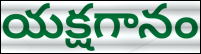
యక్షగానం